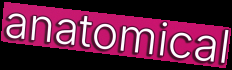
anatomical